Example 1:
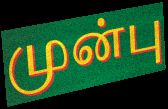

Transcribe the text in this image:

முன்பு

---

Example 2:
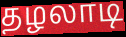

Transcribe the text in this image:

தழலாடி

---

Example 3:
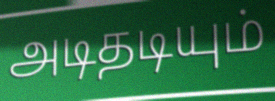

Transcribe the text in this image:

அடிதடியும்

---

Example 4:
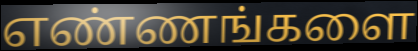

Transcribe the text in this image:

எண்ணங்களை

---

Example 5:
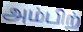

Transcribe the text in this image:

அம்பிற்